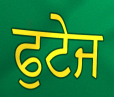
ਫੁਟੇਜ